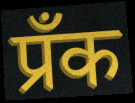
प्रँक